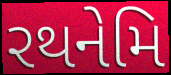
રથનેમિ